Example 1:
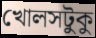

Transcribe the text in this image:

খোলসটুকু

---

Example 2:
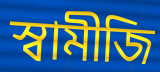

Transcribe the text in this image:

স্বামীজি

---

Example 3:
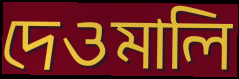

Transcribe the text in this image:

দেওমালি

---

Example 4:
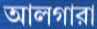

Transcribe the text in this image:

আলগারা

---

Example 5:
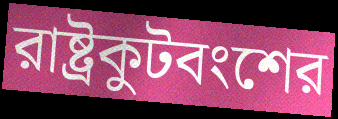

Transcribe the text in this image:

রাষ্ট্রকুটবংশের